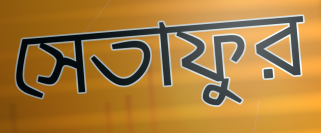
সেতাফুর